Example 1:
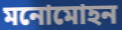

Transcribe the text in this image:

মনোমোহন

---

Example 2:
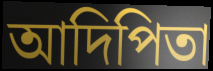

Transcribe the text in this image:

আদিপিতা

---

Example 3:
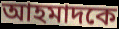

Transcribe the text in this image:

আহমাদকে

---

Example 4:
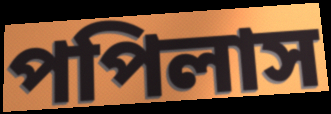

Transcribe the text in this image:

পপিলাস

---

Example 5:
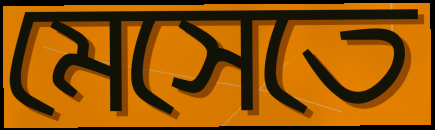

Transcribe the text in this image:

মেসেতে